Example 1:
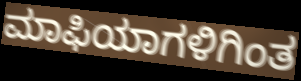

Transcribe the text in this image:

ಮಾಫಿಯಾಗಳಿಗಿಂತ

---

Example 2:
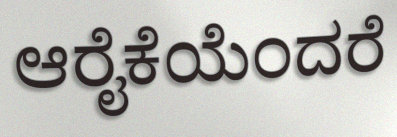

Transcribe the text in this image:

ಆರೈಕೆಯೆಂದರೆ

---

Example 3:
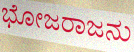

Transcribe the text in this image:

ಭೋಜರಾಜನು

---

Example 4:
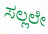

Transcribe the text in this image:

ಸಲ್ಲಲೇ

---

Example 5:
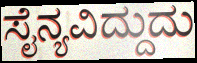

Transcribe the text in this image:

ಸೈನ್ಯವಿದ್ದುದು